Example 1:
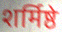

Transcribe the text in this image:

शर्मिष्ठे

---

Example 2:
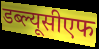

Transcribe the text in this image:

डब्ल्यूसीएफ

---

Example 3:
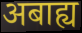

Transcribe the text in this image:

अबाह्य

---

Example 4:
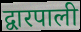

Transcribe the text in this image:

द्वारपाली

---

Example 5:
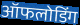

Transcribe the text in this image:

ऑफलोडिंग